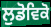
ਲੁਡੋਵਿਕੋ